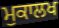
ਮੁਕਾਲਖ